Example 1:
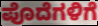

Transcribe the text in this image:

ಪೊದೆಗಳಿಗೆ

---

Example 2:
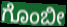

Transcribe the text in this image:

ಗೊಂಬೀ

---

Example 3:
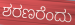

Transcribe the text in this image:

ಶರಣರೆಂದು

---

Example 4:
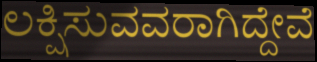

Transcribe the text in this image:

ಲಕ್ಷಿಸುವವರಾಗಿದ್ದೇವೆ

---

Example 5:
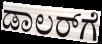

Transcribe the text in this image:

ಡಾಲರ್‌ಗೆ